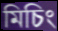
মিচিং